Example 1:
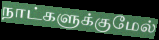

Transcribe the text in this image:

நாட்களுக்குமேல்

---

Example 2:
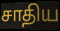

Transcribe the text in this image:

சாதிய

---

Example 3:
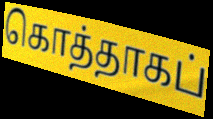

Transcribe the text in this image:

கொத்தாகப்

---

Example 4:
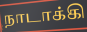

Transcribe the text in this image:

நாடாக்கி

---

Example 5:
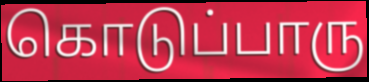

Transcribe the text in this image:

கொடுப்பாரு